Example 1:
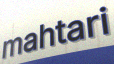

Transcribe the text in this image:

mahtari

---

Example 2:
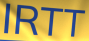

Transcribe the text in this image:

IRTT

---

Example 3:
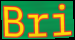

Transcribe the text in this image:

Bri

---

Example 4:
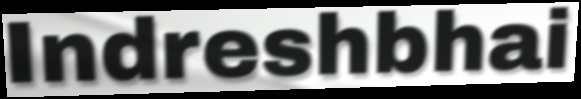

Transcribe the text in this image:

Indreshbhai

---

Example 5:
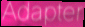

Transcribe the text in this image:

Adapter